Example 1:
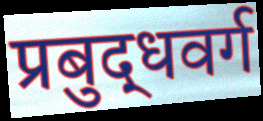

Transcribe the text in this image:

प्रबुद्धवर्ग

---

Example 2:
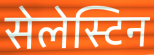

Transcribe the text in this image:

सेलेस्टिन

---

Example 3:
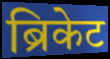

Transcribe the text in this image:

ब्रिकेट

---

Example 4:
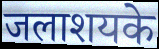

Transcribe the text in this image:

जलाशयके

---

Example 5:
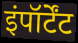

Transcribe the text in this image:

इंपॉर्टेंट